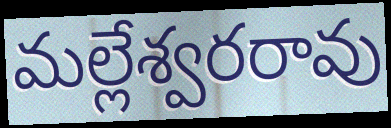
మల్లేశ్వరరావు